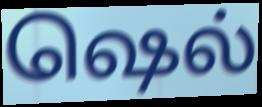
ஷெல்